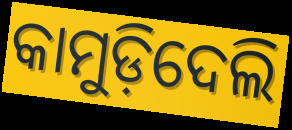
କାମୁଡ଼ିଦେଲି